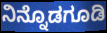
ನಿನ್ನೊಡಗೂಡಿ